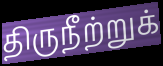
திருநீற்றுக்